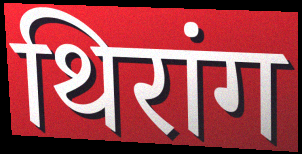
थिरांग